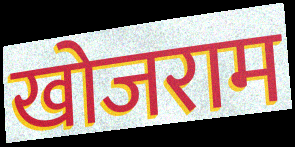
खोजराम